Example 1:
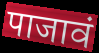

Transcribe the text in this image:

पाजावं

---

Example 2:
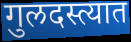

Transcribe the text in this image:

गुलदस्त्यात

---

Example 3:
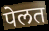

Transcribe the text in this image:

पेलत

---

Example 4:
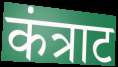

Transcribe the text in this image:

कंत्राट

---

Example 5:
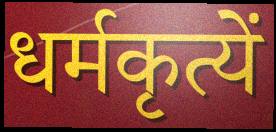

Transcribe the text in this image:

धर्मकृत्यें